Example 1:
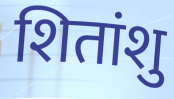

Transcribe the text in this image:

शितांशु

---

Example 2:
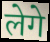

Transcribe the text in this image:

लेगे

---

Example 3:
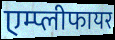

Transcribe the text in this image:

एम्प्लीफायर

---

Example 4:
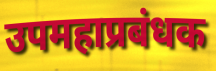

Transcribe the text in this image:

उपमहाप्रबंधक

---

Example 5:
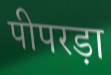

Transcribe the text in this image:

पीपरड़ा